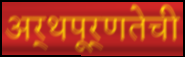
अर्थपूर्णतेची